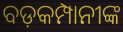
ବଡ଼କମ୍ପାନୀଙ୍କ